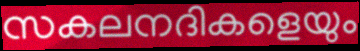
സകലനദികളെയും